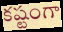
కష్టంగా